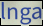
lnga